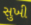
સુખી